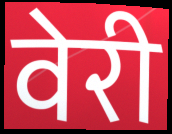
वेरी